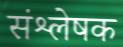
संश्लेषक